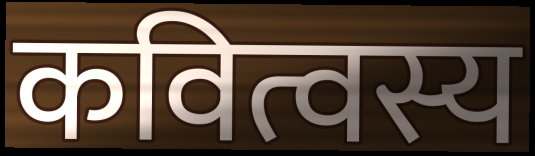
कवित्वस्य